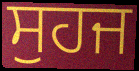
ਸੁਹਜ